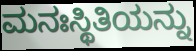
ಮನಃಸ್ಥಿತಿಯನ್ನು